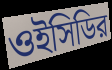
ওইসিডির